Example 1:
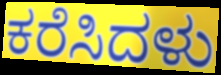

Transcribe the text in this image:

ಕರೆಸಿದಳು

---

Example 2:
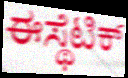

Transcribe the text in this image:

ಈಸ್ಥೆಟಿಕ್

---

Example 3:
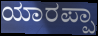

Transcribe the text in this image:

ಯಾರಪ್ಪಾ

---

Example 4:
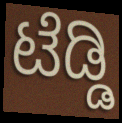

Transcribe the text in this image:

ಟೆಡ್ಡಿ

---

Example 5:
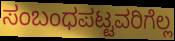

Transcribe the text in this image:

ಸಂಬಂಧಪಟ್ಟವರಿಗೆಲ್ಲ